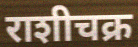
राशीचक्र